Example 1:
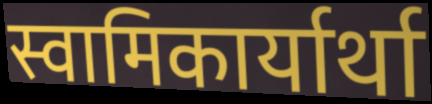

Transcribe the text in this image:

स्वामिकार्यार्था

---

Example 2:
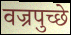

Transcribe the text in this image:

वज्रपुच्छे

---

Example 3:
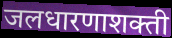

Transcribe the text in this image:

जलधारणाशक्ती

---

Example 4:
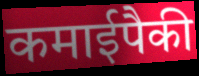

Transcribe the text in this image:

कमाईपैकी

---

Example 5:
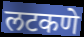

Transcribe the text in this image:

लटकणे